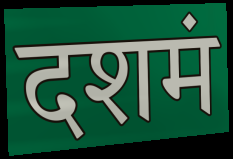
दशमं